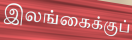
இலங்கைக்குப்